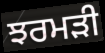
ਝਰਮੜੀ